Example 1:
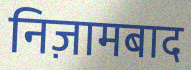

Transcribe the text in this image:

निज़ामबाद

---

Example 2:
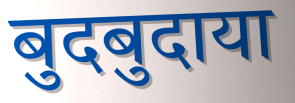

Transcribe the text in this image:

बुदबुदाया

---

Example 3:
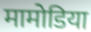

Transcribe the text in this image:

मामोडिया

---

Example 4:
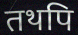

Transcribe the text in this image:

तथपि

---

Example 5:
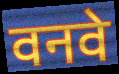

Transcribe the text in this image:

वनवे